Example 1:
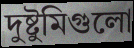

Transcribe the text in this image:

দুষ্টুমিগুলো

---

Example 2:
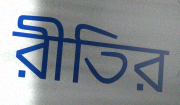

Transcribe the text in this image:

রীতির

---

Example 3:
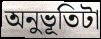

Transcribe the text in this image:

অনুভূতিটা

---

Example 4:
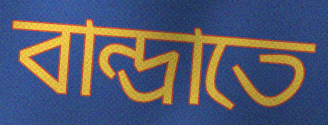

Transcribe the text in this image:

বান্দ্রাতে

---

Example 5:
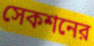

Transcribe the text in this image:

সেকশনের